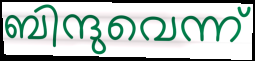
ബിന്ദുവെന്ന്